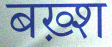
बख़्श